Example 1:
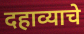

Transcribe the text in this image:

दहाव्याचे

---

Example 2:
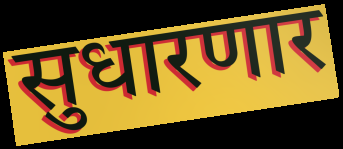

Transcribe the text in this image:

सुधारणार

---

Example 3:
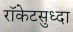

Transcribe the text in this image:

रॉकेटसुध्दा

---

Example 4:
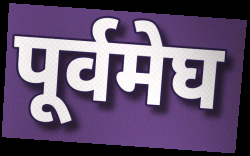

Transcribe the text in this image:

पूर्वमेघ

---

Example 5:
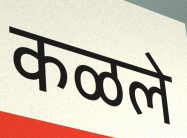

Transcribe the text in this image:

कळले